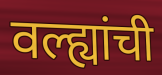
वल्ह्यांची